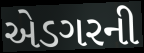
એડગરની